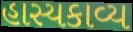
હાસ્યકાવ્ય